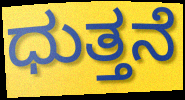
ಧುತ್ತನೆ